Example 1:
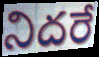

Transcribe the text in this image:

నిదరే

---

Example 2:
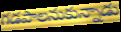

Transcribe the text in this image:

గడపాలనుకున్నాడు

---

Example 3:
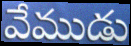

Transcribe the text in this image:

వేముడు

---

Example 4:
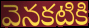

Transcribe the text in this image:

వెనకటికి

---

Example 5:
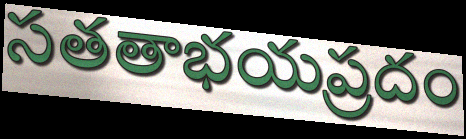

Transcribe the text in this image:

సతతాభయప్రదం